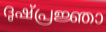
ദുഷ്പ്രജ്ഞാ